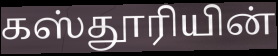
கஸ்தூரியின்